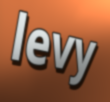
levy